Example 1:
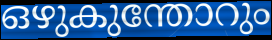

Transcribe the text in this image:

ഒഴുകുന്തോറും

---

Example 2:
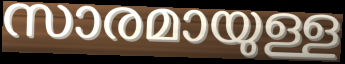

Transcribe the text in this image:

സാരമായുള്ള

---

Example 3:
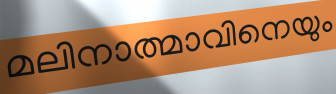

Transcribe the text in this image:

മലിനാത്മാവിനെയും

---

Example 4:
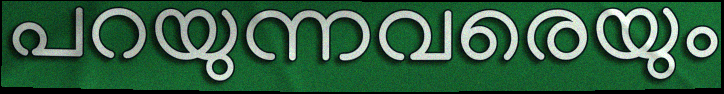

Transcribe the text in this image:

പറയുന്നവരെയും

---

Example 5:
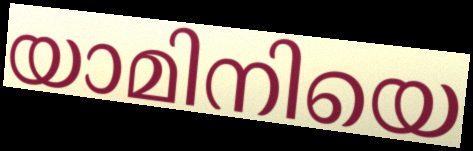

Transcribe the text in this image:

യാമിനിയെ